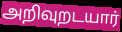
அறிவுறடயார்